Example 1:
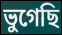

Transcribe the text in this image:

ভুগেছি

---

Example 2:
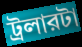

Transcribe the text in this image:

ট্রলারটা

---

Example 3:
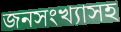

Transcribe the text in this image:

জনসংখ্যাসহ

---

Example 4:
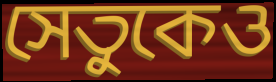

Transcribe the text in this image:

সেতুকেও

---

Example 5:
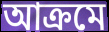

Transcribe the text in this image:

আক্রমে